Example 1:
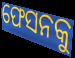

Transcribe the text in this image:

ଫେସନକୁ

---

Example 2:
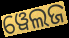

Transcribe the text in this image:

ୱେଲଜ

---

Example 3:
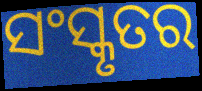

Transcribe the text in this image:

ସଂସ୍କୃତର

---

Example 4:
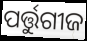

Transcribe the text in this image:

ପର୍ତ୍ତୁଗୀଜ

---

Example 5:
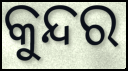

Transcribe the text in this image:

କୁନ୍ଦର